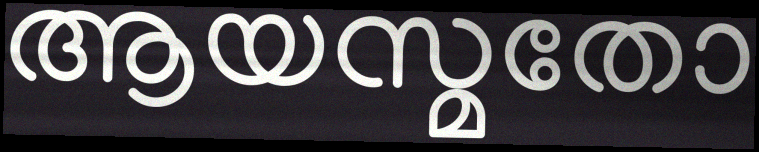
ആയസ്മതോ